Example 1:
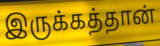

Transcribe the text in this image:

இருக்கத்தான்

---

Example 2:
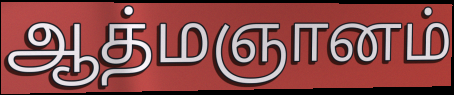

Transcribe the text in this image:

ஆத்மஞானம்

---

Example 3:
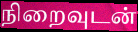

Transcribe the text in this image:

நிறைவுடன்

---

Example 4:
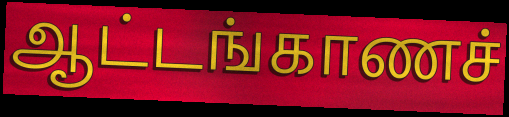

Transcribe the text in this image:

ஆட்டங்காணச்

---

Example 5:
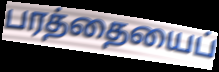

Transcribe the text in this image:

பரத்தையைப்